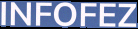
INFOFEZ